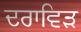
ਦਰਾਵਿੜ